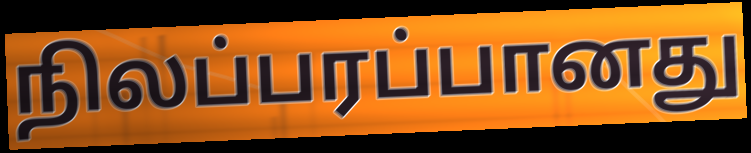
நிலப்பரப்பானது